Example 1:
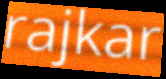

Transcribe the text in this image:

rajkar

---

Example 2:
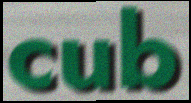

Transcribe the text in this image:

cub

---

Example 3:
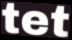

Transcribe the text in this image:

tet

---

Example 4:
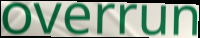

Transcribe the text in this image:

overrun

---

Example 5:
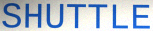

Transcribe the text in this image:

SHUTTLE